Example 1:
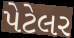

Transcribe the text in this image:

પેટેલર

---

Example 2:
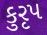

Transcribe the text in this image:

કુરૃપ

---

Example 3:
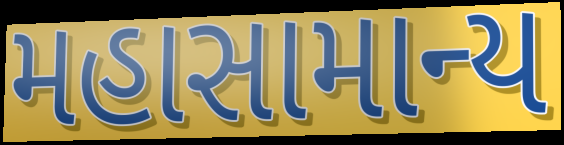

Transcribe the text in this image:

મહાસામાન્ય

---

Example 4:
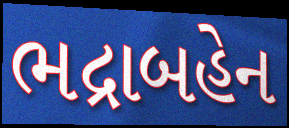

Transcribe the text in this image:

ભદ્રાબહેન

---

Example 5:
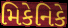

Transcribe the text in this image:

મિકેનિકે